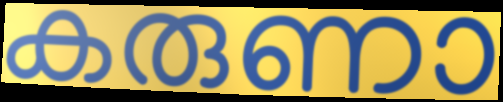
കരുണാ